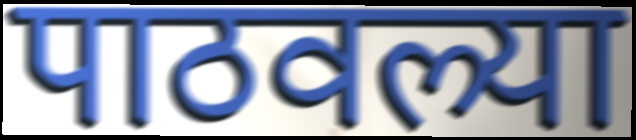
पाठवल्या